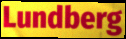
Lundberg